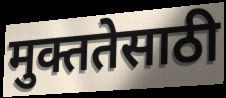
मुक्ततेसाठी